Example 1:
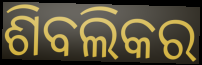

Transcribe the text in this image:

ଶିବଲିକର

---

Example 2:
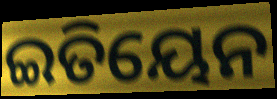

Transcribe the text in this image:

ଇତିୟେନ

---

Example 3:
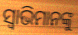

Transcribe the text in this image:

ସ୍ୱାଭିମାନଙ୍କୁ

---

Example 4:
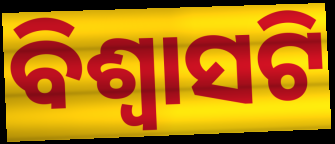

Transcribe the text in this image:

ବିଶ୍ୱାସଟି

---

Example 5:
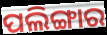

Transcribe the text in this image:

ପଲିଙ୍ଗାର